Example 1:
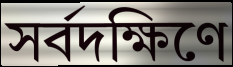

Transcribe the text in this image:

সর্বদক্ষিণে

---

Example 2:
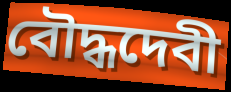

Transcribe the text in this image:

বৌদ্ধদেবী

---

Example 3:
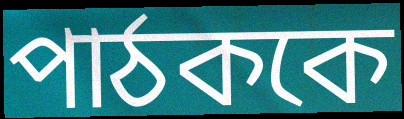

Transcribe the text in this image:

পাঠককে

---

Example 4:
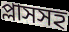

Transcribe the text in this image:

প্লাসসহ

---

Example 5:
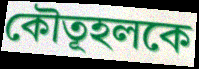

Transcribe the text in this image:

কৌতূহলকে